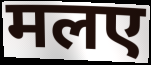
मलए